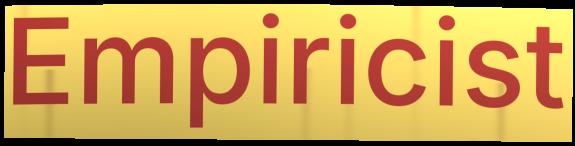
Empiricist